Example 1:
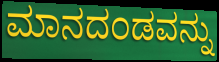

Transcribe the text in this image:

ಮಾನದಂಡವನ್ನು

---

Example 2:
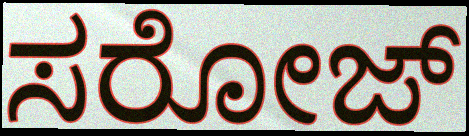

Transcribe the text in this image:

ಸರೋಜ್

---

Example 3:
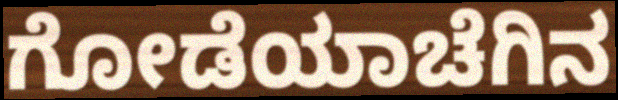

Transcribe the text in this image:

ಗೋಡೆಯಾಚೆಗಿನ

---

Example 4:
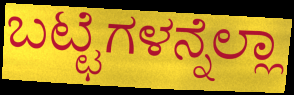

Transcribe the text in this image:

ಬಟ್ಟೆಗಳನ್ನೆಲ್ಲಾ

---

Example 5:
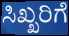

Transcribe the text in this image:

ಸಿಖ್ಖರಿಗೆ